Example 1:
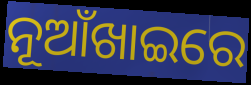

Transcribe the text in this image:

ନୂଆଁଖାଇରେ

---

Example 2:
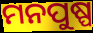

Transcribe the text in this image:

ମନପୁଷ୍ପ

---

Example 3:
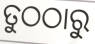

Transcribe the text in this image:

ତୁଠଠାରୁ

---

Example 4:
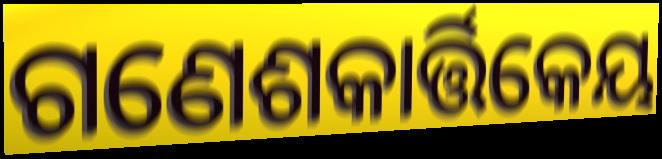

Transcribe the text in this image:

ଗଣେଶକାର୍ତ୍ତିକେୟ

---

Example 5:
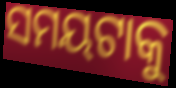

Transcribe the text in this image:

ସମୟଟାକୁ